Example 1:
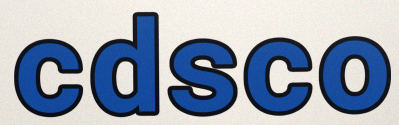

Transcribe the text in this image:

cdsco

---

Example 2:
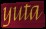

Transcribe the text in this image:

yuta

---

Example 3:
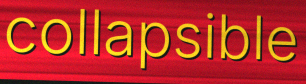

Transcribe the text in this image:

collapsible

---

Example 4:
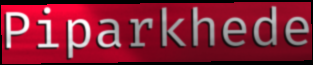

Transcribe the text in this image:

Piparkhede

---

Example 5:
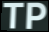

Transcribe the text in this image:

TP